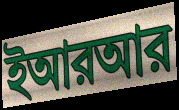
ইআরআর